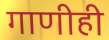
गाणीही